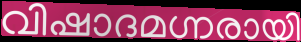
വിഷാദമഗ്നരായി